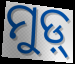
ମୁଡ଼୍